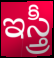
ఇస్త్రీ